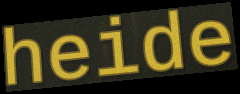
heide